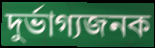
দুৰ্ভাগ্যজনক